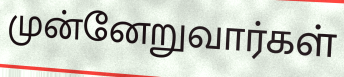
முன்னேறுவார்கள்